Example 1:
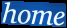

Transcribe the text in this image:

home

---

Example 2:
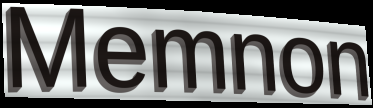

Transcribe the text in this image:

Memnon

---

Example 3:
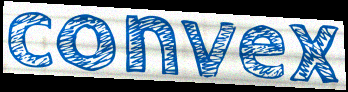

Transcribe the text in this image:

convex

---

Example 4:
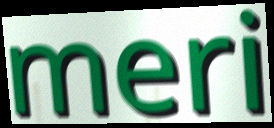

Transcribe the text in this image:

meri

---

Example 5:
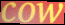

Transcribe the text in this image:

cow